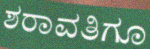
ಶರಾವತಿಗೂ